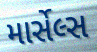
માર્સેલ્સ